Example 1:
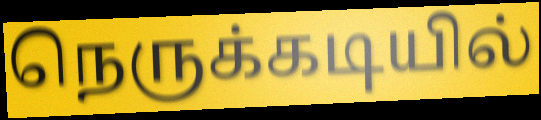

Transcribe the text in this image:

நெருக்கடியில்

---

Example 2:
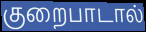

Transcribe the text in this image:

குறைபாடால்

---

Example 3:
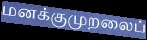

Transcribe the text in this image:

மனக்குமுறலைப்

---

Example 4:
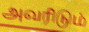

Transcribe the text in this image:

அவரிடும்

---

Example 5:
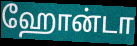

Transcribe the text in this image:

ஹோன்டா